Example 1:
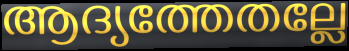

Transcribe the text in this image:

ആദ്യത്തേതല്ലേ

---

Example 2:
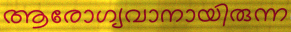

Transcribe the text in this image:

ആരോഗ്യവാനായിരുന്ന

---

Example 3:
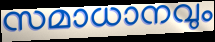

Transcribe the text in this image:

സമാധാനവും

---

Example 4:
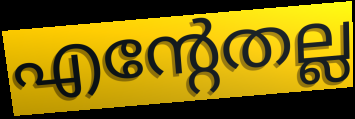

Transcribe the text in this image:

എന്റേതല്ല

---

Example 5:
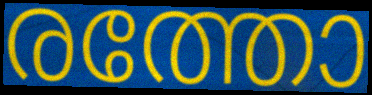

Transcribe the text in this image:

രത്തോ